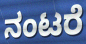
ನಂಟರೆ